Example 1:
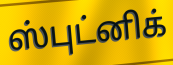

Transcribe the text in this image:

ஸ்புட்னிக்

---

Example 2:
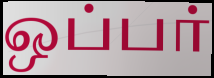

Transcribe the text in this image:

ஒப்பர்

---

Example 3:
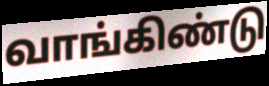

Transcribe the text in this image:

வாங்கிண்டு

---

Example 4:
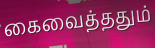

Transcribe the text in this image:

கைவைத்ததும்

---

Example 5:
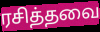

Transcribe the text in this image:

ரசித்தவை